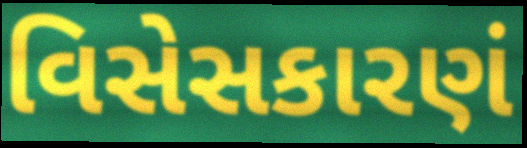
વિસેસકારણં